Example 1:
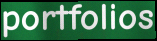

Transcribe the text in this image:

portfolios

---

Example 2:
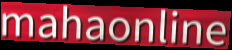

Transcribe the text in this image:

mahaonline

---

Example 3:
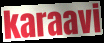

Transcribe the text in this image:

karaavi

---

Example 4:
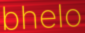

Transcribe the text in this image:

bhelo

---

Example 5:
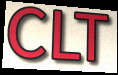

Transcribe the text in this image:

CLT